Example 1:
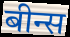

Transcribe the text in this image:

बीन्‍स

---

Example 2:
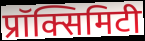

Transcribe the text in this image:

प्रॉक्सिमिटी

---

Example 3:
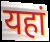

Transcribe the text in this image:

यहां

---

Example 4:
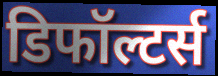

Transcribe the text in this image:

डिफॉल्टर्स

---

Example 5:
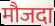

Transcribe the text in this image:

मौजदा